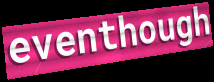
eventhough